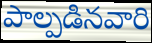
పాల్పడినవారి